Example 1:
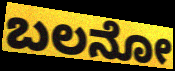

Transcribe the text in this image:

ಬಲನೋ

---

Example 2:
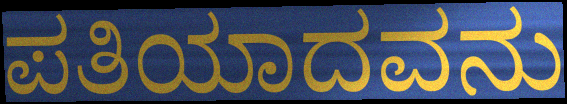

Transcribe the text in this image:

ಪತಿಯಾದವನು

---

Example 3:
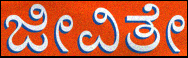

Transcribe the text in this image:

ಜೀವಿತೇ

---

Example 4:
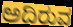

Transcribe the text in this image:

ಅದಿರುವ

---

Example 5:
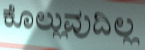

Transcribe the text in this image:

ಕೊಲ್ಲುವುದಿಲ್ಲ